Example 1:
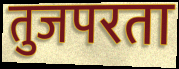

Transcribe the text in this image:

तुजपरता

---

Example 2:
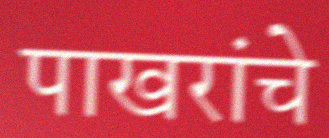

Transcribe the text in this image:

पाखरांचे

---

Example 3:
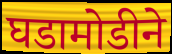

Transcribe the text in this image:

घडामोडीने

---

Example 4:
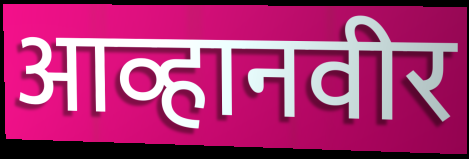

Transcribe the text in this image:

आव्हानवीर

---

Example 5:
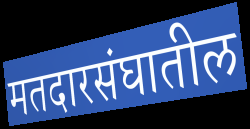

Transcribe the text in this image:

मतदारसंघातील